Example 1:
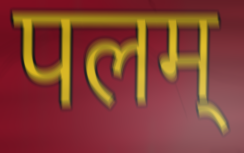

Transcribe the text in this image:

पलम्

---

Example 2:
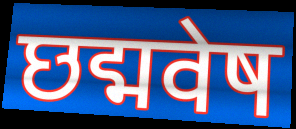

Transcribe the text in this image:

छद्मवेष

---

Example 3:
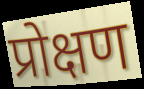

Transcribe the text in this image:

प्रोक्षण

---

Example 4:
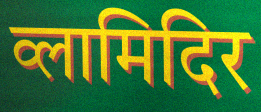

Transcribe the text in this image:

व्लामिदिर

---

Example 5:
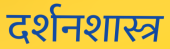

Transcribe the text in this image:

दर्शनशास्त्र